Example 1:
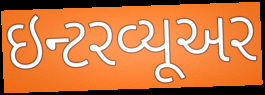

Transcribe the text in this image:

ઇન્ટરવ્યૂઅર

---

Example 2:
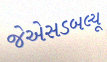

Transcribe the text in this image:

જેએસડબલ્યૂ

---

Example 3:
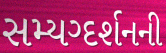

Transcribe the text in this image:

સમ્યગ્દર્શનની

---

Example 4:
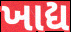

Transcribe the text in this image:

ખાદ્ય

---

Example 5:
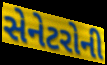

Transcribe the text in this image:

સેનેટરોની